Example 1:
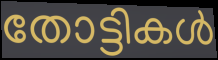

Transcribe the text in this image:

തോട്ടികൾ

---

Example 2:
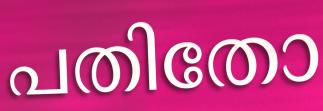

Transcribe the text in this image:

പതിതോ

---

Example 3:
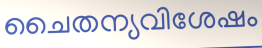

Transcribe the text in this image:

ചൈതന്യവിശേഷം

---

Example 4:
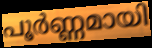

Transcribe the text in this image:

പൂർണ്ണമായി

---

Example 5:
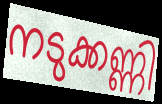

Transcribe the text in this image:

നടുക്കണ്ണി